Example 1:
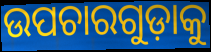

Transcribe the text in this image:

ଉପଚାରଗୁଡ଼ାକୁ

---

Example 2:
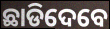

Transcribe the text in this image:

ଛାଡିଦେବେ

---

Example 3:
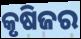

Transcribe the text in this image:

କୃଷିଜର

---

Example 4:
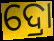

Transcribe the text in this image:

ଦ୍ରୋ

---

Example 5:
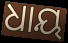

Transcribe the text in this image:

ଧାୟ